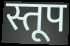
स्तूप